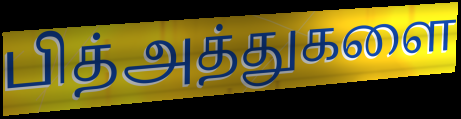
பித்அத்துகளை